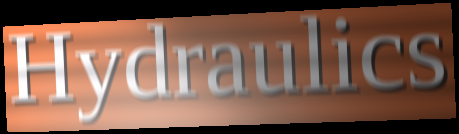
Hydraulics